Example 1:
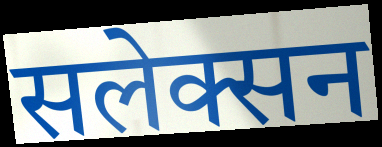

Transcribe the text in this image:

सलेक्सन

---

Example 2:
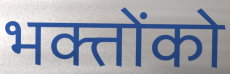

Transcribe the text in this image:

भक्तोंको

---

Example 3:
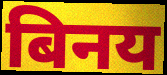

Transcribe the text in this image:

बिनय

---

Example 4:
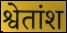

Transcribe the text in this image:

श्वेतांश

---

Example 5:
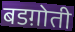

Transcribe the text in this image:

बडग़ोती